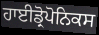
ਹਾਈਡ੍ਰੋਪੋਨਿਕਸ